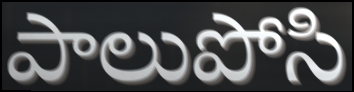
పాలుపోసి